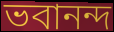
ভবানন্দ